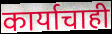
कार्याचाही